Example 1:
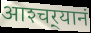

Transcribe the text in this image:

आश्चर्यानं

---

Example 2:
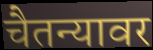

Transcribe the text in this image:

चैतन्यावर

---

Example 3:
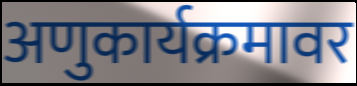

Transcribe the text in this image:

अणुकार्यक्रमावर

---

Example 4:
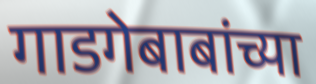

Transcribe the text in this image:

गाडगेबाबांच्या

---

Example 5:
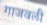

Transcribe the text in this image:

गाजवली